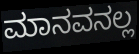
ಮಾನವನಲ್ಲ